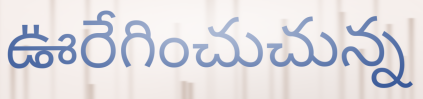
ఊరేగించుచున్న